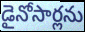
డైనోసార్లను